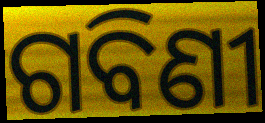
ଗବିଣୀ